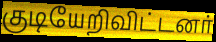
குடியேறிவிட்டனர்